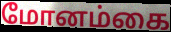
மோனம்கை